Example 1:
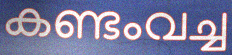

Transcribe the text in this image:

കണ്ടംവച്ച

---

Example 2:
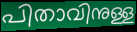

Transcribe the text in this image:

പിതാവിനുള്ള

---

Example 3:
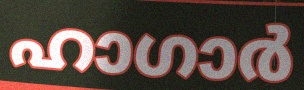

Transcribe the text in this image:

ഹാഗാർ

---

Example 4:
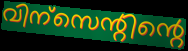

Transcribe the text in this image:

വിന്സെന്റിന്റെ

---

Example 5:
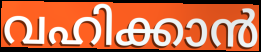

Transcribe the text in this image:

വഹിക്കാൻ